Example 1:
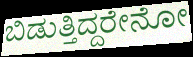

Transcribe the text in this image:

ಬಿಡುತ್ತಿದ್ದರೇನೋ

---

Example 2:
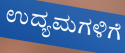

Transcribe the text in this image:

ಉದ್ಯಮಗಳಿಗೆ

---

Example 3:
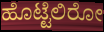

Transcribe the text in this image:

ಹೊಟ್ಟೆಲಿರೋ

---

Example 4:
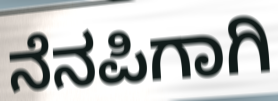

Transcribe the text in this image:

ನೆನಪಿಗಾಗಿ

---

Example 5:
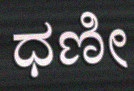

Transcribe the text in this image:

ಧಣೀ